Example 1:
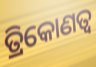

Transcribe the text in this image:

ତ୍ରିକୋଣତ୍ଵ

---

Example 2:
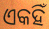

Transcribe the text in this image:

ଏକହିଁ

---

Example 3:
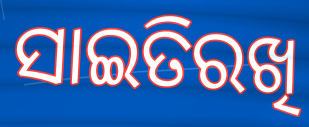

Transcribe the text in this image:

ସାଇତିରଖି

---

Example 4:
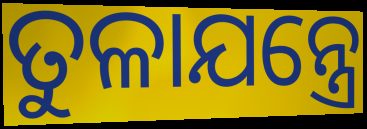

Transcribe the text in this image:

ତୁଳାଯନ୍ତ୍ରେ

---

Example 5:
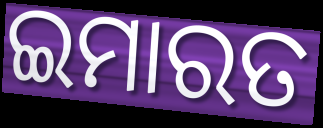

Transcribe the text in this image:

ଇମାରତ